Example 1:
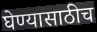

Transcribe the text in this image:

घेण्यासाठीच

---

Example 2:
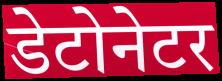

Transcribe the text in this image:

डेटोनेटर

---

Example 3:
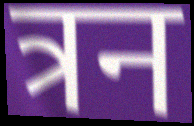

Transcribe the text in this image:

त्रन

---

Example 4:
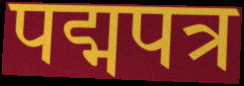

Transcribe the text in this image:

पद्मपत्र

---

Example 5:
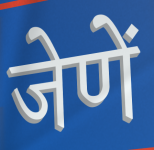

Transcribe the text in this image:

जेणें